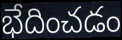
భేదించడం